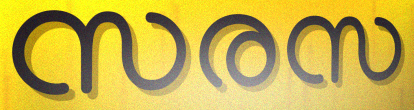
സരസ